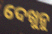
ଦେଖୁନୁ